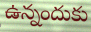
ఉన్నందుకు